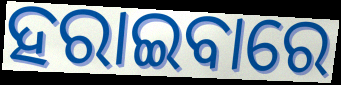
ହରାଇବାରେ